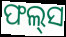
ଫଲ୍‌ସ